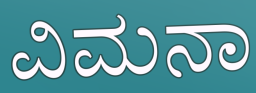
ವಿಮನಾ